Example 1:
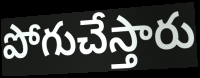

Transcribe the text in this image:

పోగుచేస్తారు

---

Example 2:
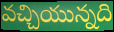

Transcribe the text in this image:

వచ్చియున్నది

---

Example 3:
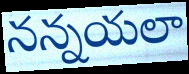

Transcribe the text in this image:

నన్నయలా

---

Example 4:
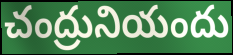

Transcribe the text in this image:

చంద్రునియందు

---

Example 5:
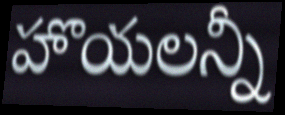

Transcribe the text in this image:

హొయలన్నీ